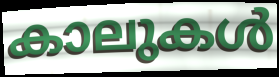
കാലുകൾ